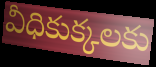
వీధికుక్కలకు